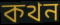
কথন